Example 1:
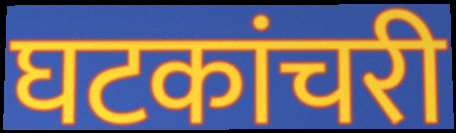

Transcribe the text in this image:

घटकांचरी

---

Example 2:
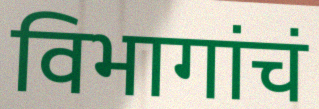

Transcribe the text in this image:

विभागांचं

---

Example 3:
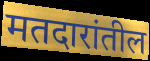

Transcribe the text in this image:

मतदारांतील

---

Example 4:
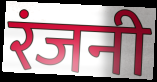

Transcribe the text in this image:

रंजनी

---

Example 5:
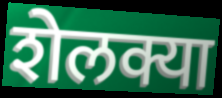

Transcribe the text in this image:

शेलक्या